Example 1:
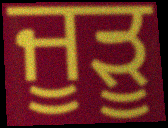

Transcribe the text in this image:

ਜੂੜੂ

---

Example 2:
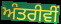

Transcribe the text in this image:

ਅੰਤਰੀਵੀਂ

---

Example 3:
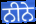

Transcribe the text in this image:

ਨੀਨੇ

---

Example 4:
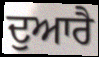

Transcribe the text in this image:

ਦੁਆਰੈ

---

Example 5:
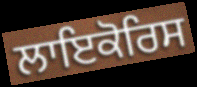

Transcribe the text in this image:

ਲਾਇਕੋਰਿਸ